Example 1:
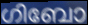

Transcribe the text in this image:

ഗിബോ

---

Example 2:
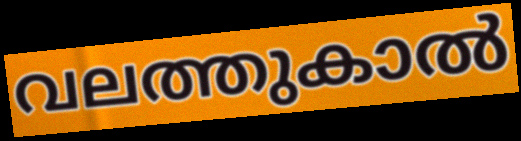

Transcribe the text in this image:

വലത്തുകാൽ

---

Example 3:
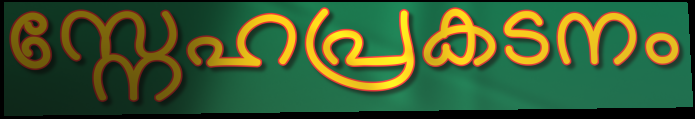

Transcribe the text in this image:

സ്നേഹപ്രകടനം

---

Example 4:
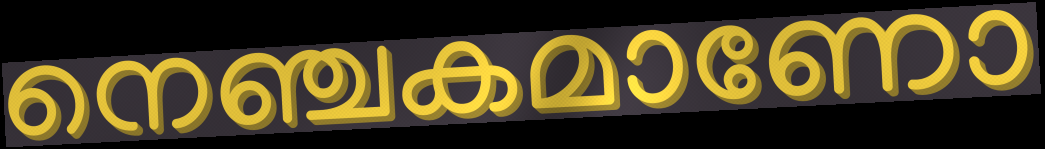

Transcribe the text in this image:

നെഞ്ചകമാണോ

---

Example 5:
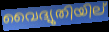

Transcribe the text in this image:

വൈദ്യുതിയില്